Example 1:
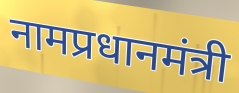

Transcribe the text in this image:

नामप्रधानमंत्री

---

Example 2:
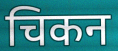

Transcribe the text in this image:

चिकन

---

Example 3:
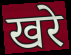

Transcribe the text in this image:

खरे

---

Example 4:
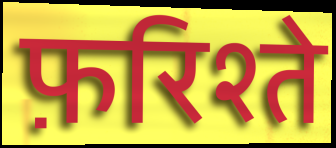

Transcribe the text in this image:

फ़रिश्ते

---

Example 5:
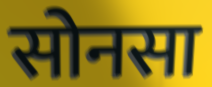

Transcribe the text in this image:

सोनसा